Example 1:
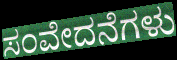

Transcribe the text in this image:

ಸಂವೇದನೆಗಳು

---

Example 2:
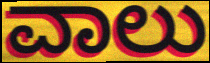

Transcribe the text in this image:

ವಾಲು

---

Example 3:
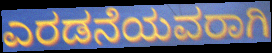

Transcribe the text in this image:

ಎರಡನೆಯವರಾಗಿ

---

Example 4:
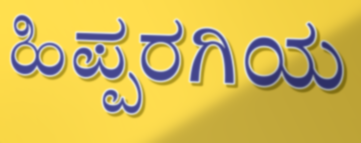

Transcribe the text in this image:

ಹಿಪ್ಪರಗಿಯ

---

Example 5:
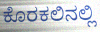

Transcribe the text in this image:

ಕೊರಕಲಿನಲ್ಲಿ